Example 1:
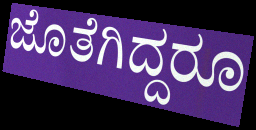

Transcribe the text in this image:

ಜೊತೆಗಿದ್ದರೂ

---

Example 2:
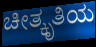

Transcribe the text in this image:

ಚೀತ್ಕೃತಿಯ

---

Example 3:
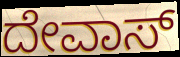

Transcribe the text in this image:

ದೇವಾಸ್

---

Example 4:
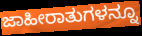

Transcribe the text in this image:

ಜಾಹೀರಾತುಗಳನ್ನೂ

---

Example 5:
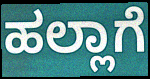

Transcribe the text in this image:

ಹಲ್ಲಾಗೆ